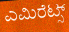
ಎಮಿರೆಟ್ಸ್